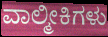
ವಾಲ್ಮೀಕಿಗಳು